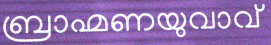
ബ്രാഹ്മണയുവാവ്